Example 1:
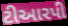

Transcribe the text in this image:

ટીઆરપી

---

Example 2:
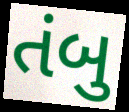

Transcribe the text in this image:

તંબુ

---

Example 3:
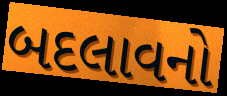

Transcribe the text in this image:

બદલાવનો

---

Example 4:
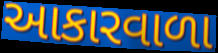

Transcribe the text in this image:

આકારવાળા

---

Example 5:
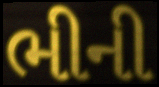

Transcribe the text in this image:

ભીની